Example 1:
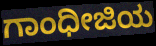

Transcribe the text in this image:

ಗಾಂಧೀಜಿಯ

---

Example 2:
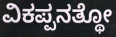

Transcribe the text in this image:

ವಿಕಪ್ಪನತ್ಥೋ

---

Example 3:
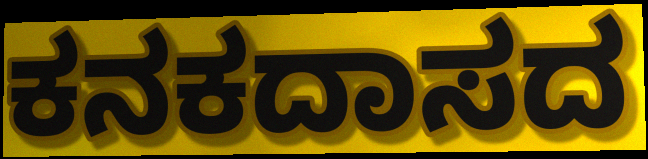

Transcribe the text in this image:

ಕನಕದಾಸದ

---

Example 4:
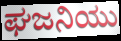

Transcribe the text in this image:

ಘಜನಿಯು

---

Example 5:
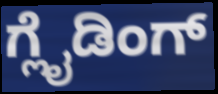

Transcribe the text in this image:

ಗ್ಲೈಡಿಂಗ್